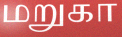
மறுகா